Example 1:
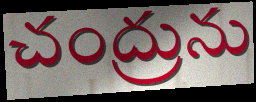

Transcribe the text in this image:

చంద్రును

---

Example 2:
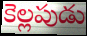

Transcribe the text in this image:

కెల్లపుడు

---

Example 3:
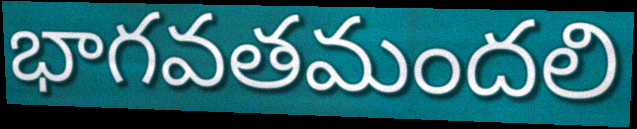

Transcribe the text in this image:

భాగవతమందలి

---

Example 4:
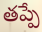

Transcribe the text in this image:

తప్పే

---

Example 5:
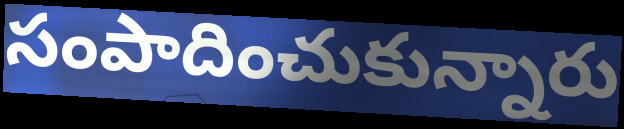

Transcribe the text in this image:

సంపాదించుకున్నారు